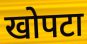
खोपटा